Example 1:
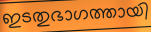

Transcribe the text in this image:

ഇടതുഭാഗത്തായി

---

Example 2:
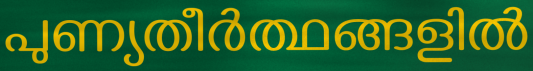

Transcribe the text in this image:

പുണ്യതീർത്ഥങ്ങളിൽ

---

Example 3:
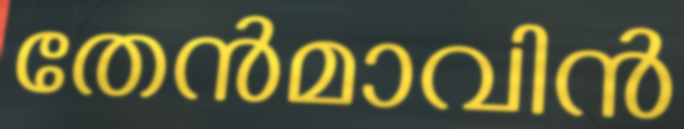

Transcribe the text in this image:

തേൻമാവിൻ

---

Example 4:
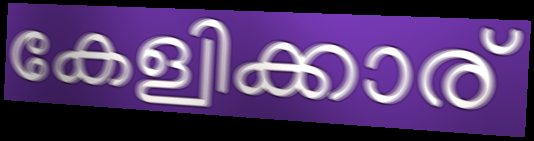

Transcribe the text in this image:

കേള്വിക്കാര്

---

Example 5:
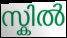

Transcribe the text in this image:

സ്കിൽ